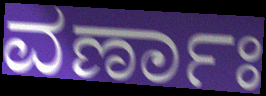
ವರ್ಣಾಃ